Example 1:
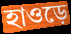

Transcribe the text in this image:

হাওড়ে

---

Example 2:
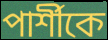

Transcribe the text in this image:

পার্শীকে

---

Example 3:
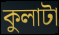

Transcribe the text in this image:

কুলাটা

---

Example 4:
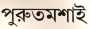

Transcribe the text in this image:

পুরুতমশাই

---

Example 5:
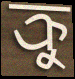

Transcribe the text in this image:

ক্রু